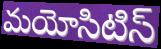
మయోసిటిస్